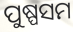
ପୁଷ୍ପସମ